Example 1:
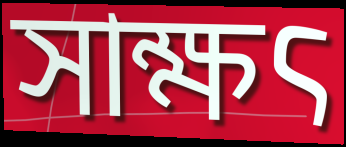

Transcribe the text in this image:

সাক্ষৎ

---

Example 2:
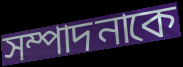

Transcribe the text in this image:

সম্পাদনাকে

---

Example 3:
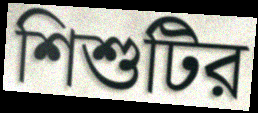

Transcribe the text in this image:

শিশুটির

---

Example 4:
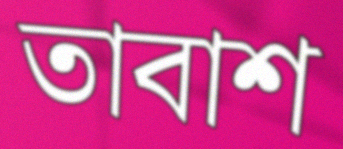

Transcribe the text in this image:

তাবাশ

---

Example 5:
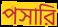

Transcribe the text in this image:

পসারি